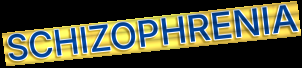
SCHIZOPHRENIA